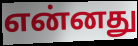
என்னது